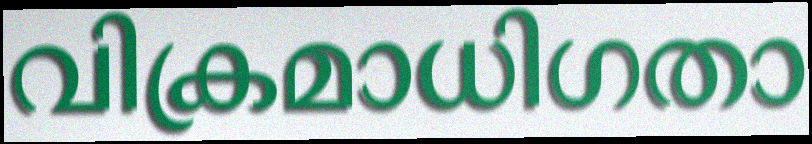
വിക്രമാധിഗതാ